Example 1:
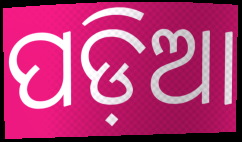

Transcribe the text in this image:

ପଡ଼ିଆ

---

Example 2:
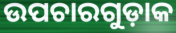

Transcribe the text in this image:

ଉପଚାରଗୁଡ଼ାକ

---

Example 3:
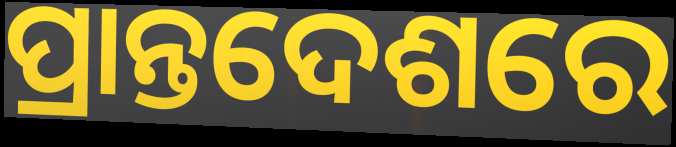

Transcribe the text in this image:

ପ୍ରାନ୍ତଦେଶରେ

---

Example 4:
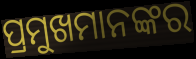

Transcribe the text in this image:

ପ୍ରମୁଖମାନଙ୍କର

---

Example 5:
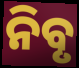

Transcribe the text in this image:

ନିବୃ